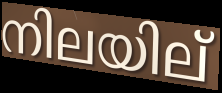
നിലയില്